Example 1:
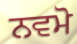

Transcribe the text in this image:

ਨਵਮੋ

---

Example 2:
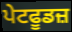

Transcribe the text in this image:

ਪੇਟਫੂਡਜ਼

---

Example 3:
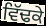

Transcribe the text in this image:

ਵਿੱਢਕੇ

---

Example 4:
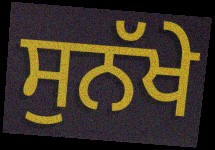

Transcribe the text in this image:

ਸੁਨੱਖੇ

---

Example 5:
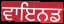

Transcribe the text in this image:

ਵਾਇਨਡ